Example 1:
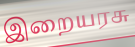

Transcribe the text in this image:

இறையரசு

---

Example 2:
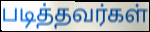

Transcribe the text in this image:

படித்தவர்கள்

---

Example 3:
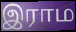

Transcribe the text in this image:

இராம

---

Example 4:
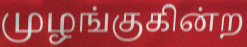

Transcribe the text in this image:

முழங்குகின்ற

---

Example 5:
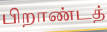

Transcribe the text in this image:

பிறாண்டத்